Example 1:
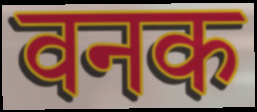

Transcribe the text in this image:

वनक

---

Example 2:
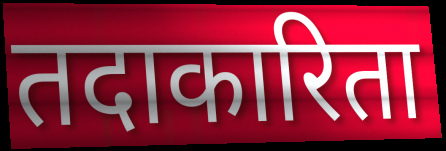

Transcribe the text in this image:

तदाकारिता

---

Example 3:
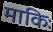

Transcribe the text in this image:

माकिः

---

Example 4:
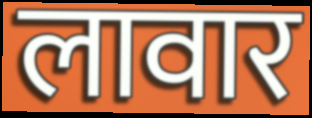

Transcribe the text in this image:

लावार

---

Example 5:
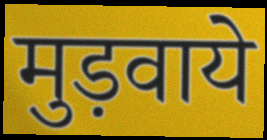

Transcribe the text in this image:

मुड़वाये